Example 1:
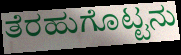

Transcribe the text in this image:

ತೆರಹುಗೊಟ್ಟನು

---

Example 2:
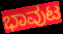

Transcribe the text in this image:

ಭಾವುಟ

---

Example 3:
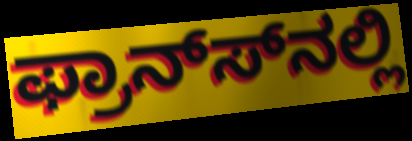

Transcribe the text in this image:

ಫ್ರಾನ್ಸ್‍ನಲ್ಲಿ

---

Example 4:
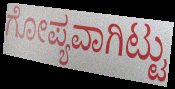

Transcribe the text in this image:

ಗೋಪ್ಯವಾಗಿಟ್ಟು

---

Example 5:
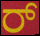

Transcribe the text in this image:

ರ್